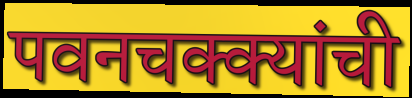
पवनचक्क्यांची